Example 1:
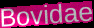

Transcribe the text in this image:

Bovidae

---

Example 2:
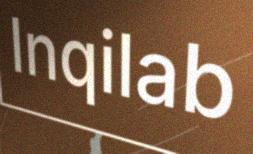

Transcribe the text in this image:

Inqilab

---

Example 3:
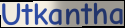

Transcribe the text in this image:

Utkantha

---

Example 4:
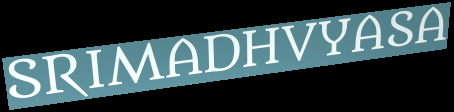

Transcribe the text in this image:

SRIMADHVYASA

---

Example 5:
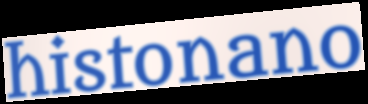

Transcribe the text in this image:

histonano